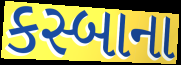
કસ્બાના